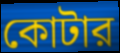
কোটার